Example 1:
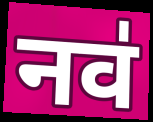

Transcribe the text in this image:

नव॑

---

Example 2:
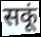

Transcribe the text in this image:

सकूं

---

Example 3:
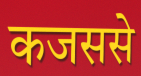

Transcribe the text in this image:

कजससे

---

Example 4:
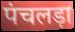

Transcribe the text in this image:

पंचलड़ा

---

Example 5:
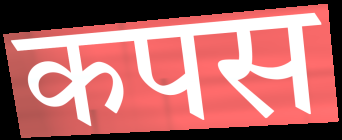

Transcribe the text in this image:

कपस